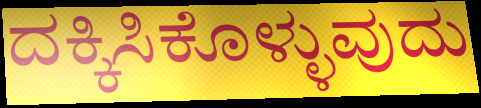
ದಕ್ಕಿಸಿಕೊಳ್ಳುವುದು